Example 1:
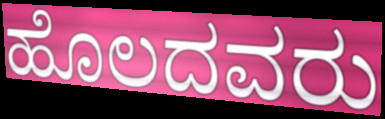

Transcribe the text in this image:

ಹೊಲದವರು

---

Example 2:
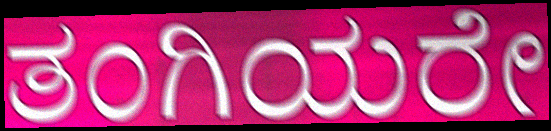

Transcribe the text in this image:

ತಂಗಿಯರೇ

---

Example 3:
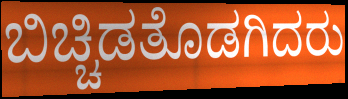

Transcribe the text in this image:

ಬಿಚ್ಚಿಡತೊಡಗಿದರು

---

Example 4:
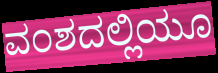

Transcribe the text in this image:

ವಂಶದಲ್ಲಿಯೂ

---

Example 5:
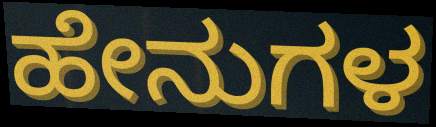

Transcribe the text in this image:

ಹೇನುಗಳ